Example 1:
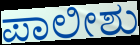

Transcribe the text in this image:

ಪಾಲೀಶು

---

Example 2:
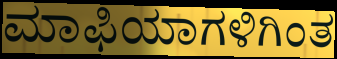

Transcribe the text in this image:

ಮಾಫಿಯಾಗಳಿಗಿಂತ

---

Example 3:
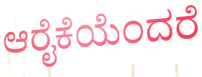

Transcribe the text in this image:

ಆರೈಕೆಯೆಂದರೆ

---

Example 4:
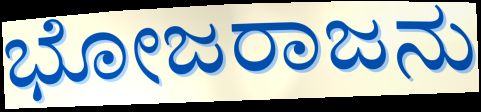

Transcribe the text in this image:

ಭೋಜರಾಜನು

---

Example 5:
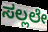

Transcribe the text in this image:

ಸಲ್ಲಲೇ